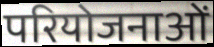
परियोजनाओं